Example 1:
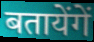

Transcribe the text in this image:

बतायेंगें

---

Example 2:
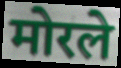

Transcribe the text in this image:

मोरले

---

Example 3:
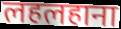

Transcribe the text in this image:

लहलहाना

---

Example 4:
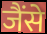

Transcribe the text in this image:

जैंसे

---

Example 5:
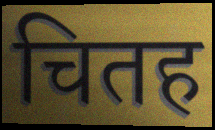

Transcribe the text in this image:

चितह